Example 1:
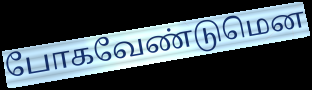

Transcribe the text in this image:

போகவேண்டுமென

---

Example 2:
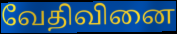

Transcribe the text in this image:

வேதிவினை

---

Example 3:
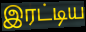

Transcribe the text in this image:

இரட்டிய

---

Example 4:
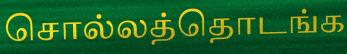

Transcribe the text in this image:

சொல்லத்தொடங்க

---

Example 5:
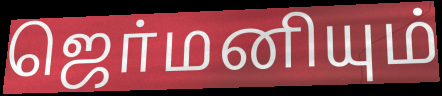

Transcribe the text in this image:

ஜெர்மனியும்